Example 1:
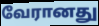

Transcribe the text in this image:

வேரானது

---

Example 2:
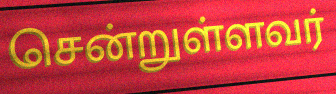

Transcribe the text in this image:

சென்றுள்ளவர்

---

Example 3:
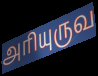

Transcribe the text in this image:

அரியுருவ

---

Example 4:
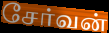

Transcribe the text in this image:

சேர்வன்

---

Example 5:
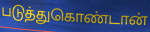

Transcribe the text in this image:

படுத்துகொண்டான்